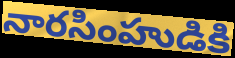
నారసింహుడికి